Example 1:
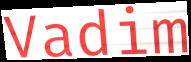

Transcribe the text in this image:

Vadim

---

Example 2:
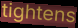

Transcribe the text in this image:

tightens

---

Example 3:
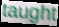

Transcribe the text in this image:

taught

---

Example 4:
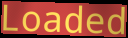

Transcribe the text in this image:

Loaded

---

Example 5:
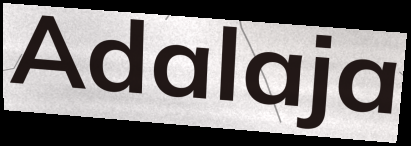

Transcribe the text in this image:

Adalaja